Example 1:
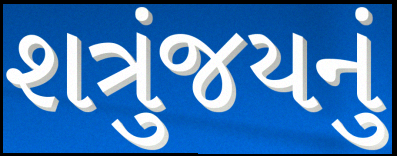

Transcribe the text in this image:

શત્રુંજયનું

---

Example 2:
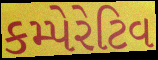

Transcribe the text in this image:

કમ્પેરેટિવ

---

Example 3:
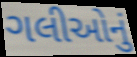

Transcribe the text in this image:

ગલીઓનું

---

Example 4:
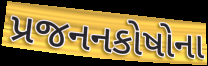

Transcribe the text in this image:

પ્રજનનકોષોના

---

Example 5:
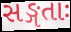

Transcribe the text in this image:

સઙ્ગતાઃ